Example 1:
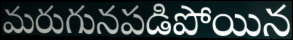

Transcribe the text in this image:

మరుగునపడిపోయిన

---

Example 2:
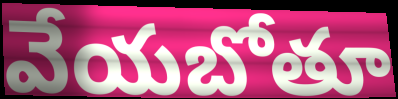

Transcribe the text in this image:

వేయబోతూ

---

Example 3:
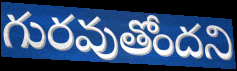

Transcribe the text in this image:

గురవుతోందని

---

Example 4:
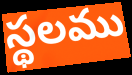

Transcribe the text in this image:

స్థలము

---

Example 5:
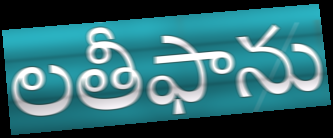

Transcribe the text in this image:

లతీఫాను